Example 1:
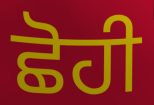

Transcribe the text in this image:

ਛੋਹੀ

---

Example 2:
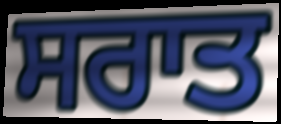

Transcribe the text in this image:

ਸਰਾਤ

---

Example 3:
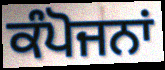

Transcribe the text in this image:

ਕੰਪੋਜਨਾਂ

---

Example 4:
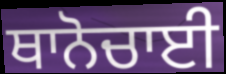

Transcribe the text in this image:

ਥਾਨੋਚਾਈ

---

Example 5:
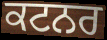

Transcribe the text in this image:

ਕਟਨਰ